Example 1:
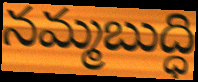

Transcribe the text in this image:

నమ్మబుద్ధి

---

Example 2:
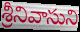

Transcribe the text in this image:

శ్రీనివాసుని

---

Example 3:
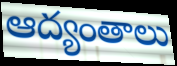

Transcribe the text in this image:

ఆద్యంతాలు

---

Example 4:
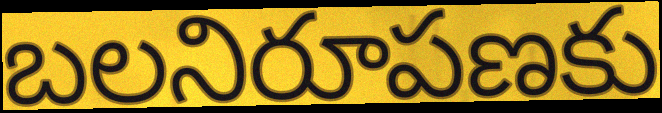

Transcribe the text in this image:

బలనిరూపణకు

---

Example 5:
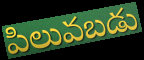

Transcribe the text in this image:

పిలువబడు